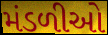
મંડળીઓ